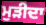
ਮੁੜੀਦਾ